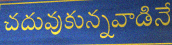
చదువుకున్నవాడినే